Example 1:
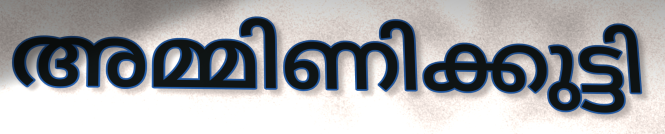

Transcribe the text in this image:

അമ്മിണിക്കുട്ടി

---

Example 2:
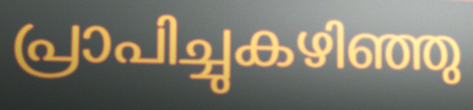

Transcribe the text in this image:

പ്രാപിച്ചുകഴിഞ്ഞു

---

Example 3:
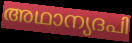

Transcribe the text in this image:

അഥാന്യദപി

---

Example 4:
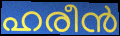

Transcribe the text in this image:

ഹരീൻ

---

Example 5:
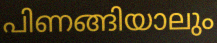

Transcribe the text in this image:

പിണങ്ങിയാലും